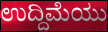
ಉದ್ದಿಮೆಯು